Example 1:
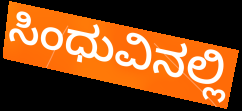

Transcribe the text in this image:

ಸಿಂಧುವಿನಲ್ಲಿ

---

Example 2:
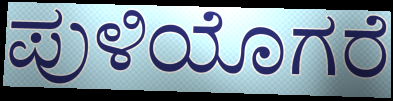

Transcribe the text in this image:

ಪುಳಿಯೊಗರೆ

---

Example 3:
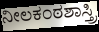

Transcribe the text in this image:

ನೀಲಕಂಠಶಾಸ್ತ್ರಿ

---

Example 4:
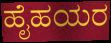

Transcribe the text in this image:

ಹೈಹಯರ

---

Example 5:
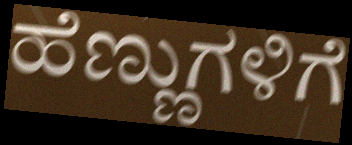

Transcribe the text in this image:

ಹೆಣ್ಣುಗಳಿಗೆ